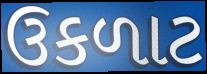
ઉકળાટ